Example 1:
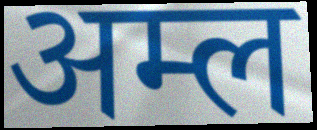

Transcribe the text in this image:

अम्ल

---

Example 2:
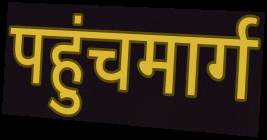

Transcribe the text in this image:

पहुंचमार्ग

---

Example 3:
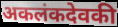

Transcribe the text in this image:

अकलंकदेवकी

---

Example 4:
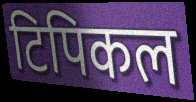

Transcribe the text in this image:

टिपिकल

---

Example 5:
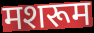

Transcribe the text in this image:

मशरूम